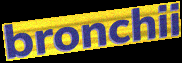
bronchii